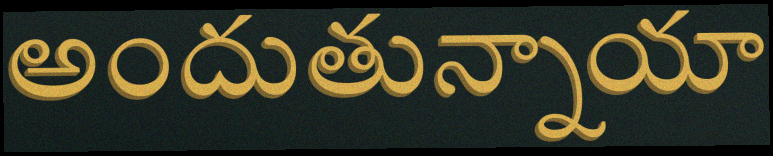
అందుతున్నాయా